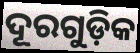
ଦୂରଗୁଡ଼ିକ